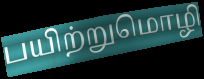
பயிற்றுமொழி